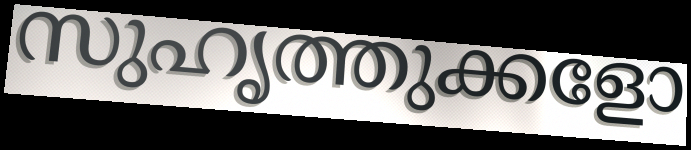
സുഹൃത്തുക്കളോ